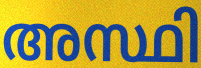
അസ്ഥി